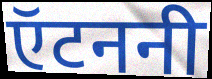
ऍटननी